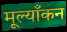
मूल्याँकन